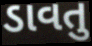
ડાવતુ